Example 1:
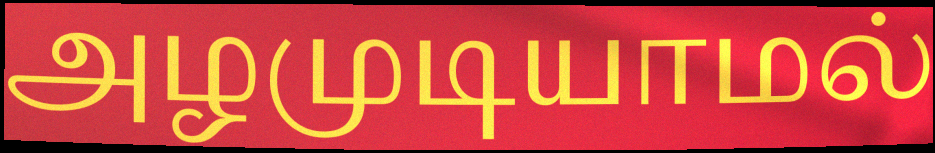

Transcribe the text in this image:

அழமுடியாமல்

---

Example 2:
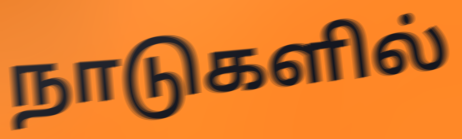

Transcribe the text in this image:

நாடுகளில்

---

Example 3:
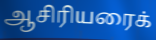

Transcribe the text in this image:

ஆசிரியரைக்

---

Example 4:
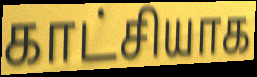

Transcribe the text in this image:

காட்சியாக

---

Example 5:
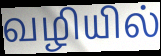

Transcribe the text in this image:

வழியில்